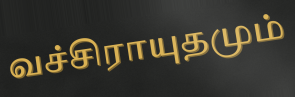
வச்சிராயுதமும்